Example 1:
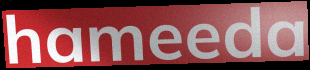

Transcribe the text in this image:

hameeda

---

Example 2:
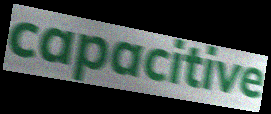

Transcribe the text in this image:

capacitive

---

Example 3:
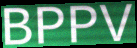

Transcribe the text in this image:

BPPV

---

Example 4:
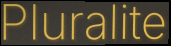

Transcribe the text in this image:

Pluralite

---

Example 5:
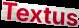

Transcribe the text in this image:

Textus